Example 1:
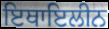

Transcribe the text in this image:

ਇਥਾਇਲੀਨ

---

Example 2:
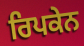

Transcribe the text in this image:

ਰਿਪਕੇਨ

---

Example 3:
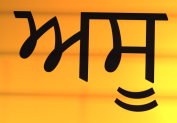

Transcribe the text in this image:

ਅਸੂ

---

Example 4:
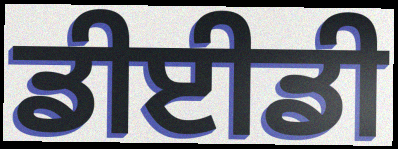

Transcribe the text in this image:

ਡੀਈਡੀ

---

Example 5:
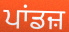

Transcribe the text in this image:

ਪਾਂਡਜ਼